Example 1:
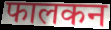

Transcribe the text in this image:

फालकन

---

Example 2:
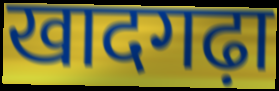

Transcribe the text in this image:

खादगढ़ा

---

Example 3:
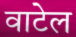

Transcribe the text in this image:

वाटेल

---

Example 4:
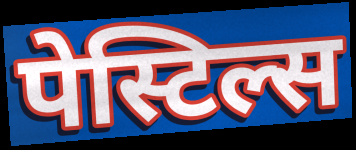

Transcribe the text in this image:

पेस्टिल्स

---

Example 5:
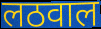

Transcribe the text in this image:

लठवाल